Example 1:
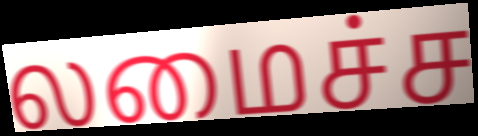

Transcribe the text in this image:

லமைச்ச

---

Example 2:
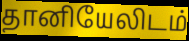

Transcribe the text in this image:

தானியேலிடம்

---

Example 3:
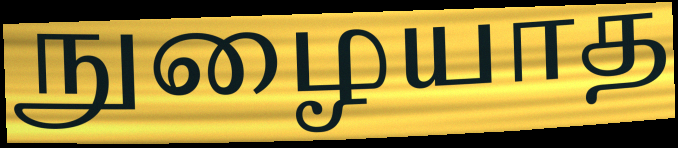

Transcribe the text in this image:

நுழையாத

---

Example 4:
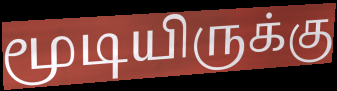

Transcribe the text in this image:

மூடியிருக்கு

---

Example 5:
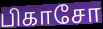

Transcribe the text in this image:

பிகாசோ